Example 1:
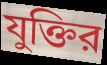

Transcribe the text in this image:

যুক্তির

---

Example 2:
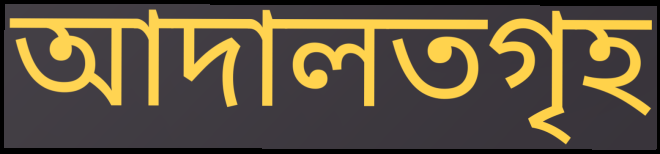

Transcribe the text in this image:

আদালতগৃহ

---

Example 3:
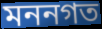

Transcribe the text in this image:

মননগত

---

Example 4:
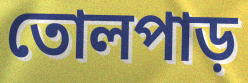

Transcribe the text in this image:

তোলপাড়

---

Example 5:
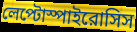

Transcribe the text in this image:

লেপ্টোস্পাইরোসিস